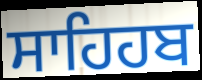
ਸਾਹਿਹਬ